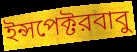
ইন্সপেক্টরবাবু